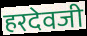
हरदेवजी